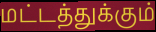
மட்டத்துக்கும்